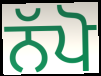
ਨੱਪੋ